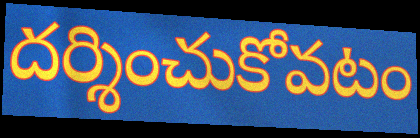
దర్శించుకోవటం